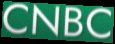
CNBC